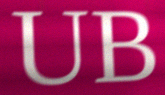
UB